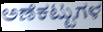
ಅಣೆಕಟ್ಟುಗಳ